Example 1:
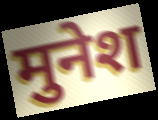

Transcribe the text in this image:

मुनेश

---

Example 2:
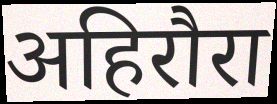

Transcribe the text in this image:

अहिरौरा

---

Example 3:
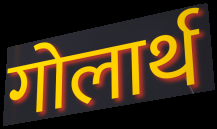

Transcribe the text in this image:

गोलार्थ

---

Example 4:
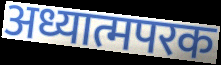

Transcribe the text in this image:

अध्यात्मपरक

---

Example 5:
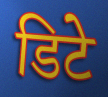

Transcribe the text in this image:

डिटे